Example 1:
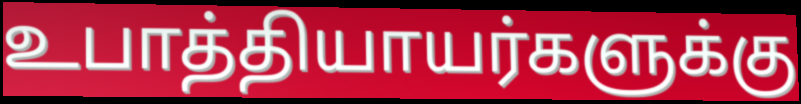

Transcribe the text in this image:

உபாத்தியாயர்களுக்கு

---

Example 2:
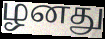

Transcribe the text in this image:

ழனது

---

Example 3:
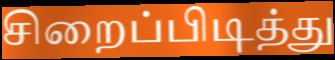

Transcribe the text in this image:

சிறைப்பிடித்து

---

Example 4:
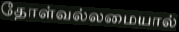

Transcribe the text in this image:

தோள்வல்லமையால்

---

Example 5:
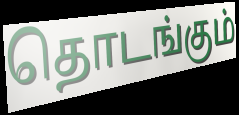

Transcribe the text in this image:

தொடங்கும்